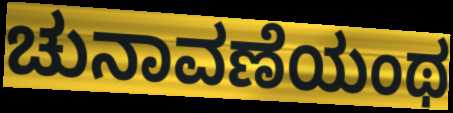
ಚುನಾವಣೆಯಂಥ